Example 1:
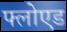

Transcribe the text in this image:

फ्लोएड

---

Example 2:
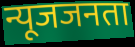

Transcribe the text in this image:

न्यूजजनता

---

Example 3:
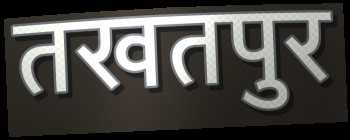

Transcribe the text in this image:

तखतपुर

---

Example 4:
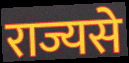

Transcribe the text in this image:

राज्यसे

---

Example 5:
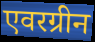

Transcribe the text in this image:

एवरग्रीन